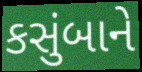
કસુંબાને